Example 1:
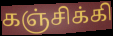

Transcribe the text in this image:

கஞ்சிக்கி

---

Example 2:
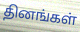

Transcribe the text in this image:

தினங்கள்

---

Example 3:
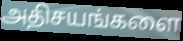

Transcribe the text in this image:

அதிசயங்களை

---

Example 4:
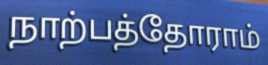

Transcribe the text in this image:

நாற்பத்தோராம்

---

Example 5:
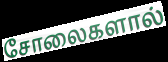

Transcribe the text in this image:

சோலைகளால்